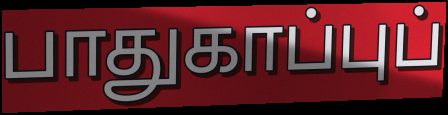
பாதுகாப்புப்